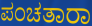
ಪಂಚತಾರಾ